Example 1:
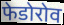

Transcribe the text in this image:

फेडोरोव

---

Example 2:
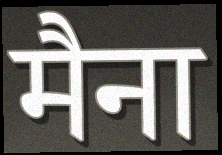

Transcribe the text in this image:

मैना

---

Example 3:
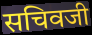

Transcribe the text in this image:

सचिवजी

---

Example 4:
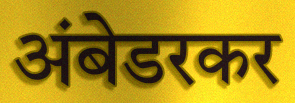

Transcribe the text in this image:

अंबेडरकर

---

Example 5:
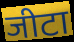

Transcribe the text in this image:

जीटा